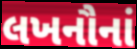
લખનૌનાં